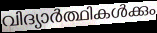
വിദ്യാർത്ഥികൾക്കും